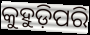
କୁହୁଡ଼ିପରି